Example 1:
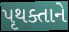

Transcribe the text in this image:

પૃથક્તાને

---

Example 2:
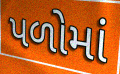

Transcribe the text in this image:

પળોમાં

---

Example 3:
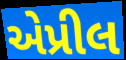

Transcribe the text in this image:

એપ્રીલ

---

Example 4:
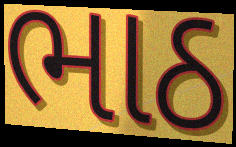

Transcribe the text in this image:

ભાઠ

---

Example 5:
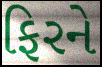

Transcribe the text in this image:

ફિરને